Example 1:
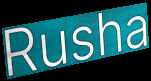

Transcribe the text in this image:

Rusha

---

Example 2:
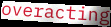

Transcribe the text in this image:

overacting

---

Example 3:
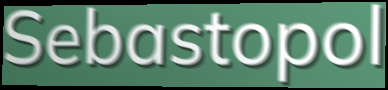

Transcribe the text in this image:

Sebastopol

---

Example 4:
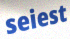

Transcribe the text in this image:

seiest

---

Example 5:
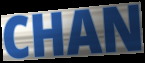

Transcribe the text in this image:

CHAN